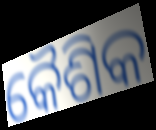
କୈଶିକ